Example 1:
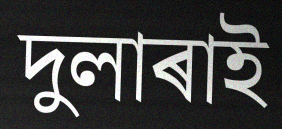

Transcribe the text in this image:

দুলাৰাই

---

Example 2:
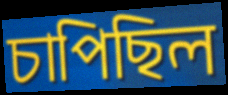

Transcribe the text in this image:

চাপিছিল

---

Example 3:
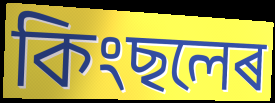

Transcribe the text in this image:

কিংছলেৰ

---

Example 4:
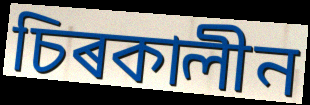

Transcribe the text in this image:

চিৰকালীন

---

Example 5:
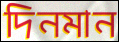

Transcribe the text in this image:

দিনমান